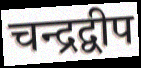
चन्द्रद्वीप